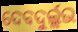
ଦେବଦୁର୍ଲ୍ଲଭ